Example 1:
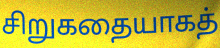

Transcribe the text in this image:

சிறுகதையாகத்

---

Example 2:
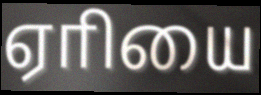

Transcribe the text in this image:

ஏரியை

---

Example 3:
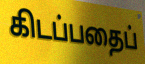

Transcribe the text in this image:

கிடப்பதைப்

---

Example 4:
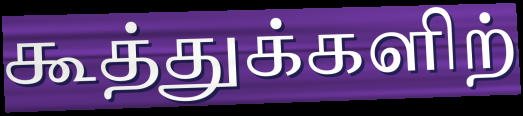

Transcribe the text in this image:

கூத்துக்களிற்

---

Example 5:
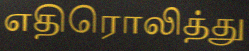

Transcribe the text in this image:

எதிரொலித்து